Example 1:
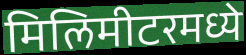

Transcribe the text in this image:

मिलिमीटरमध्ये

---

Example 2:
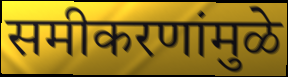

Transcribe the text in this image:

समीकरणांमुळे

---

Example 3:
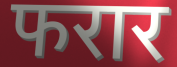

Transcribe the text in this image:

फरार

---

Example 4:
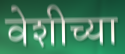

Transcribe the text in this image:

वेशीच्या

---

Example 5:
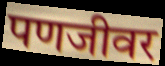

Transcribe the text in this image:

पणजीवर